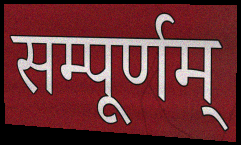
सम्पूर्णम्